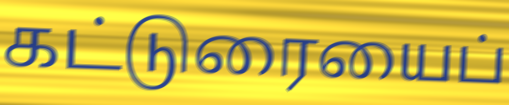
கட்டுரையைப்